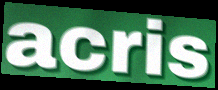
acris